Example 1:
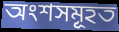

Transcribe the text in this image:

অংশসমূহত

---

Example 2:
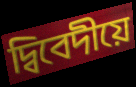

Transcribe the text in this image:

দ্বিবেদীয়ে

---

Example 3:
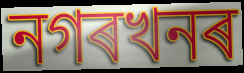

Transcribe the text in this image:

নগৰখনৰ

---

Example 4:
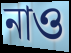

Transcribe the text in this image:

নাও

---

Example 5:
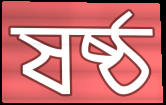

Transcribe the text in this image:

ষষ্ঠ